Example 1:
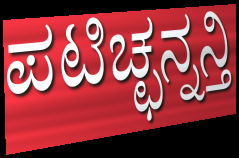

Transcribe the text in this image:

ಪಟಿಚ್ಛನ್ನನ್ತಿ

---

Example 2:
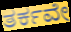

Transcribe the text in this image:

ತರ್ಕವೇ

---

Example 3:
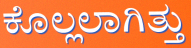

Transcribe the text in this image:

ಕೊಲ್ಲಲಾಗಿತ್ತು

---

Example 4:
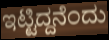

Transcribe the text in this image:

ಇಟ್ಟಿದ್ದನೆಂದು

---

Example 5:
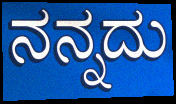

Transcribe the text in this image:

ನನ್ನದು